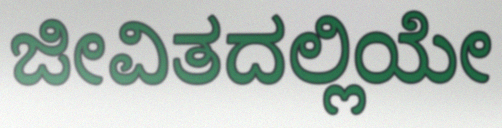
ಜೀವಿತದಲ್ಲಿಯೇ